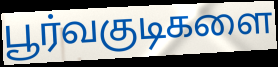
பூர்வகுடிகளை